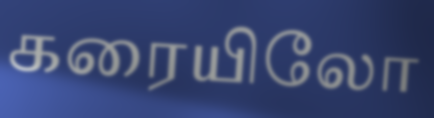
கரையிலோ